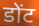
डोंट